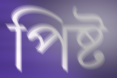
পিষ্ট